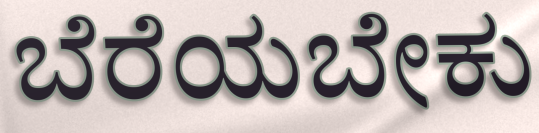
ಬೆರೆಯಬೇಕು